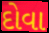
દોવા